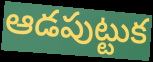
ఆడపుట్టుక